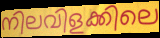
നിലവിളക്കിലെ